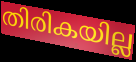
തിരികയില്ല